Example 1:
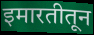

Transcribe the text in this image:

इमारतीतून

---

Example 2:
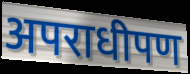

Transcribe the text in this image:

अपराधीपण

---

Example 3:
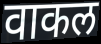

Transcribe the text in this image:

वाकल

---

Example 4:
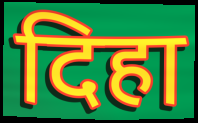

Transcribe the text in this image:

दिहा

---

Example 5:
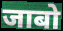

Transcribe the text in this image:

जाबो